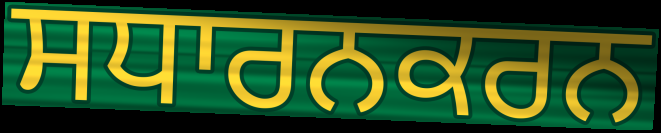
ਸਧਾਰਨਕਰਨ